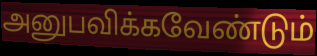
அனுபவிக்கவேண்டும்